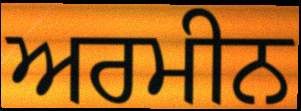
ਅਰਮੀਨ